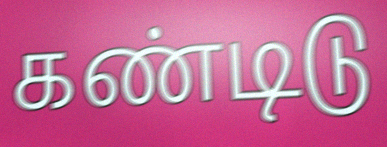
கண்டிடு